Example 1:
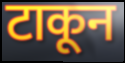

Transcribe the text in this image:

टाकून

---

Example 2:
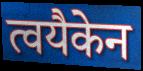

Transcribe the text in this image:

त्वयैकेन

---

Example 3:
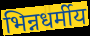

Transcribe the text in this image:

भिन्नधर्मीय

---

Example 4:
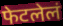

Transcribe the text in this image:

फेटलेलं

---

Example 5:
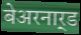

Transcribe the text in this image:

बेअरनार्ड